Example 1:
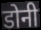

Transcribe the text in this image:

डोनी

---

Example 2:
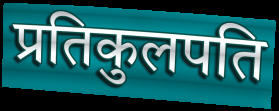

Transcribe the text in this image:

प्रतिकुलपति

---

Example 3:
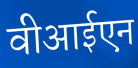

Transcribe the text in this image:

वीआईएन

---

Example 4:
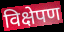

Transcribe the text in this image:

विक्षेपण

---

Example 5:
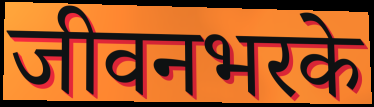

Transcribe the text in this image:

जीवनभरके